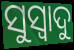
ସୁସ୍ଵାଦୁ